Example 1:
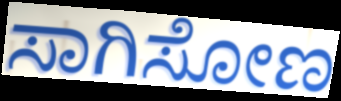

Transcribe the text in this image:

ಸಾಗಿಸೋಣ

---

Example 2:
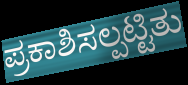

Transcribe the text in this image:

ಪ್ರಕಾಶಿಸಲ್ಪಟ್ಟಿತು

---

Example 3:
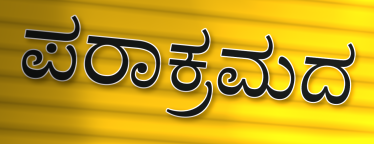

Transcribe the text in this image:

ಪರಾಕ್ರಮದ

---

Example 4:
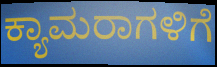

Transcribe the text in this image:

ಕ್ಯಾಮರಾಗಳಿಗೆ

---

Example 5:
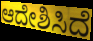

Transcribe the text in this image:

ಆದೇಶಿಸಿದೆ